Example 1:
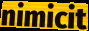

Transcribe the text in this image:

nimicit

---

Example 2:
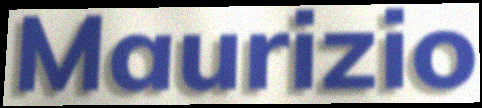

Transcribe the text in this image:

Maurizio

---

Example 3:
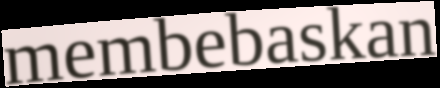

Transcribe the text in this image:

membebaskan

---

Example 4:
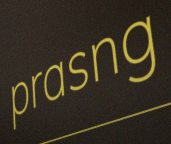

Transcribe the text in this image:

prasng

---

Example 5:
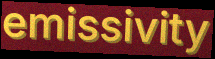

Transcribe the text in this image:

emissivity